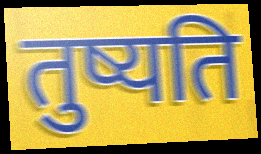
तुष्यति